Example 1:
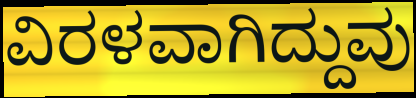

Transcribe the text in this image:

ವಿರಳವಾಗಿದ್ದುವು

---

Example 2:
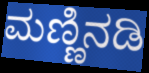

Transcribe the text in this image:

ಮಣ್ಣಿನಡಿ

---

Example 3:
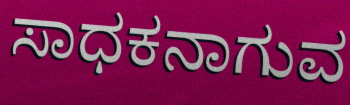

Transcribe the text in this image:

ಸಾಧಕನಾಗುವ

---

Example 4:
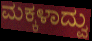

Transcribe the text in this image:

ಮಕ್ಕಳಾದ್ವು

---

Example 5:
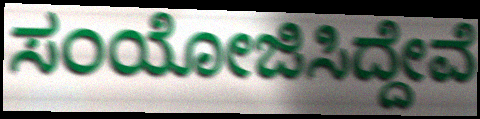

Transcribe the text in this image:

ಸಂಯೋಜಿಸಿದ್ದೇವೆ